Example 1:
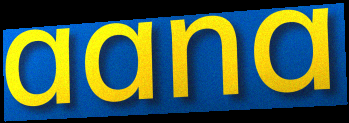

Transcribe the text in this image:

aana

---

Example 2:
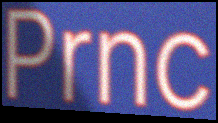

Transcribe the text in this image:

Prnc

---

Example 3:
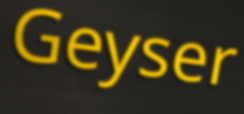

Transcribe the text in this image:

Geyser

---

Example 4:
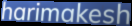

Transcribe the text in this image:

harimakesh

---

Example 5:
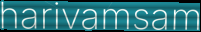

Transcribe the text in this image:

harivamsam